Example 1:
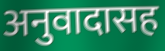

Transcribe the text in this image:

अनुवादासह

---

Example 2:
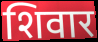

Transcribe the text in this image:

शिवार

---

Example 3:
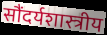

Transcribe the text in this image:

सौंदर्यशास्त्रीय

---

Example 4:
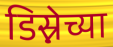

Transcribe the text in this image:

डिस्नेच्या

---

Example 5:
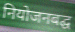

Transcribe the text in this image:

नियोजनबद्घ